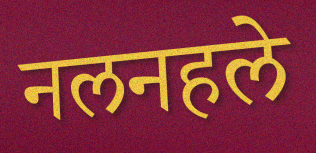
नलनहले